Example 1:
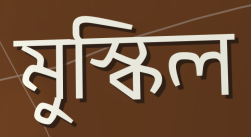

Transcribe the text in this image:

মুস্কিল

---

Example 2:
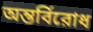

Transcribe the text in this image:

অন্তর্বিরোধ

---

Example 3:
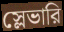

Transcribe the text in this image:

স্লেভারি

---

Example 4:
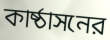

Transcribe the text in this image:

কাষ্ঠাসনের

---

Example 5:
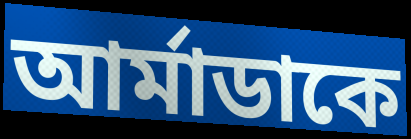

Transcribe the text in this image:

আর্মাডাকে